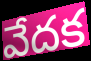
వేదక